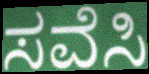
ಸವೆಸಿ